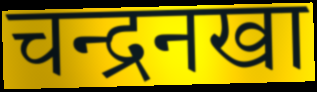
चन्द्रनखा